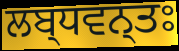
ਲਬ੍ਧਵਨ੍ਤਃ